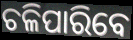
ଚଳିପାରିବେ